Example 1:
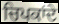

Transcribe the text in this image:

ਚਿਪਕਾਂਦੇ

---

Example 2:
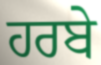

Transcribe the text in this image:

ਹਰਬੇ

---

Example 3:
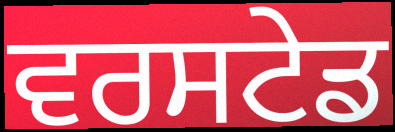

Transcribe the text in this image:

ਵਰਸਟੇਡ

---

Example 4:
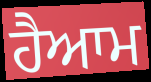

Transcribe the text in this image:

ਹੈਆਮ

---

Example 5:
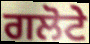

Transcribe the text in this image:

ਗਲੋਟੇ